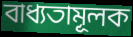
বাধ্যতামূলক